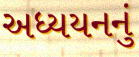
અધ્યયનનું